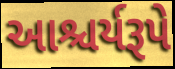
આશ્ચર્યરૂપે